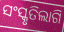
ସଂସ୍କୃତିଲାଗି